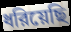
ধরিয়েছি